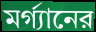
মর্গ্যানের